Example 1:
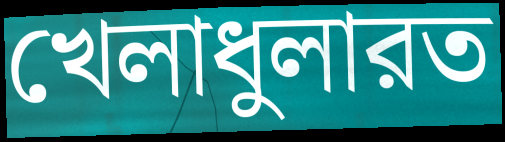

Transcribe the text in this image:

খেলাধুলারত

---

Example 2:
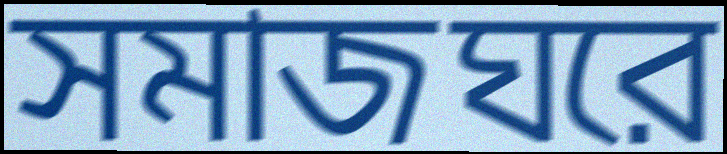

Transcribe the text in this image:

সমাজঘরে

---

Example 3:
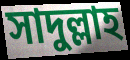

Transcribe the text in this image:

সাদুল্লাহ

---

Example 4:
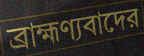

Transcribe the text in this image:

ব্রাহ্মণ্যবাদের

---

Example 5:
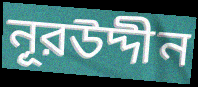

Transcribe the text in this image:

নূরউদ্দীন